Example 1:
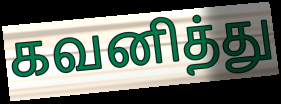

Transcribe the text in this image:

கவனித்து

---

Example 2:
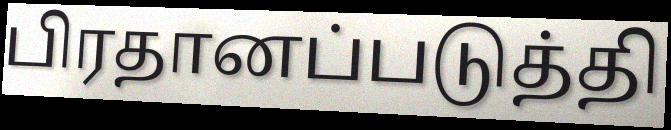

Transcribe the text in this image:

பிரதானப்படுத்தி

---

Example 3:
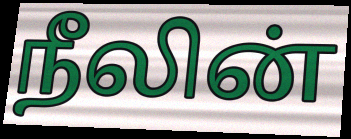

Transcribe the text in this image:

நீலின்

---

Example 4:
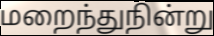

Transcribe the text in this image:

மறைந்துநின்று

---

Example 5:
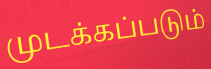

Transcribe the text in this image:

முடக்கப்படும்